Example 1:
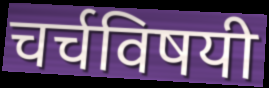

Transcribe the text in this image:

चर्चविषयी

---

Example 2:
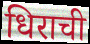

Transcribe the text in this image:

धिराची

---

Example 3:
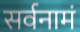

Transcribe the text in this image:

सर्वनामं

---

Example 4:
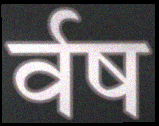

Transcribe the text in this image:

र्वष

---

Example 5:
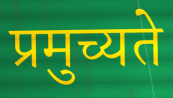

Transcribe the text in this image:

प्रमुच्यते